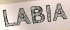
LABIA